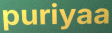
puriyaa